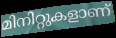
മിനിറ്റുകളാണ്